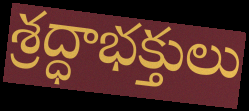
శ్రద్ధాభక్తులు